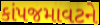
કાંપજમાવટને